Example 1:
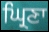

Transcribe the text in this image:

ਘ੍ਰਿਣਾ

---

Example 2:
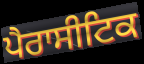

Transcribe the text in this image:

ਪੈਰਾਸੀਟਿਕ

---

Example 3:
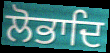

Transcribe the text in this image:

ਲੋਭਾਦਿ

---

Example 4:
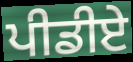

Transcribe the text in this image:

ਪੀਡੀਏ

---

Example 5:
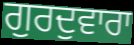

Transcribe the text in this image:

ਗੁਰਦੁਵਾਰਾ